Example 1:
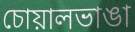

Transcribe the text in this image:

চোয়ালভাঙা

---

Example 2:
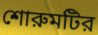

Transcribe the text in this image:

শোরুমটির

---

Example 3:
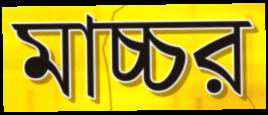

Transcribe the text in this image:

মাচ্চর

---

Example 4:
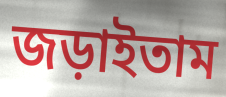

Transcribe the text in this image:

জড়াইতাম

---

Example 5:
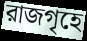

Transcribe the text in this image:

রাজগৃহে